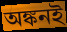
অঙ্কনই